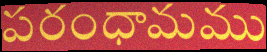
పరంధామము